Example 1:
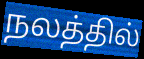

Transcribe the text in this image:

நலத்தில்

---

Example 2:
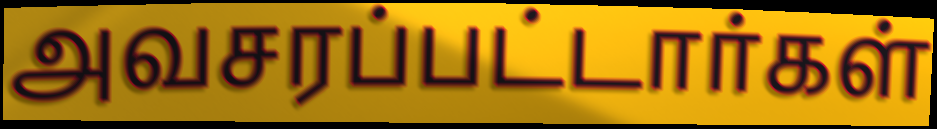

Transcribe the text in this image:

அவசரப்பட்டார்கள்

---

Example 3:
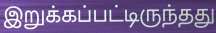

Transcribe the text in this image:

இறுக்கப்பட்டிருந்தது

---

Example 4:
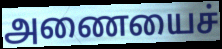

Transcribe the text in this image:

அணையைச்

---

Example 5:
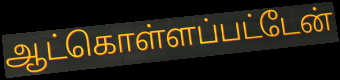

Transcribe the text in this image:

ஆட்கொள்ளப்பட்டேன்